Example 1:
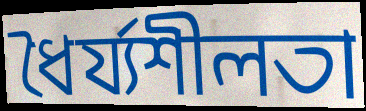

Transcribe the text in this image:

ধৈর্য্যশীলতা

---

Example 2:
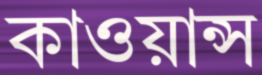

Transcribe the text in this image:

কাওয়ান্স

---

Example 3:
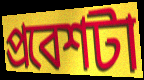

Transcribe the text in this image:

প্রবেশটা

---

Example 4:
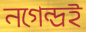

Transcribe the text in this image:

নগেন্দ্রই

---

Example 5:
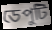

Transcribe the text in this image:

ডেপুটি